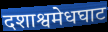
दशाश्वमेधघाट